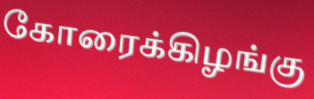
கோரைக்கிழங்கு